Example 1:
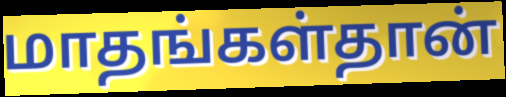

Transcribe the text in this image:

மாதங்கள்தான்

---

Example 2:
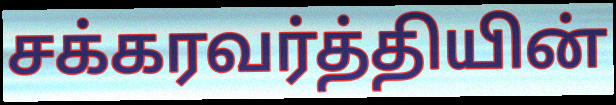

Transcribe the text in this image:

சக்கரவர்த்தியின்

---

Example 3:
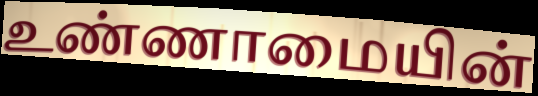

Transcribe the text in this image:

உண்ணாமையின்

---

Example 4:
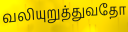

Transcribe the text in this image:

வலியுறுத்துவதோ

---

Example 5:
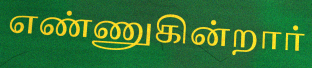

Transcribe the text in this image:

எண்ணுகின்றார்